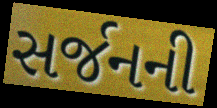
સર્જનની